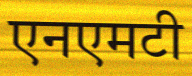
एनएमटी